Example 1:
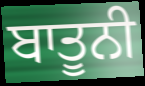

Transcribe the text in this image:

ਬਾਤੂਨੀ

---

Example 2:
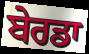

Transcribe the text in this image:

ਬੇਰਡਾ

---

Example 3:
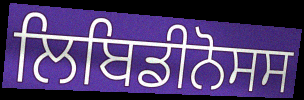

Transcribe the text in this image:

ਲਿਬਿਡੀਨੋਸਸ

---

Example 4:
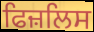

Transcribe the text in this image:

ਫਿਜ਼ਲਿਸ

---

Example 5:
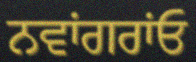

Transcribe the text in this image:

ਨਵਾਂਗਰਾਂਓ